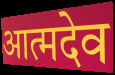
आत्मदेव